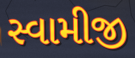
સ્વામીજી